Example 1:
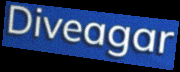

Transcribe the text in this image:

Diveagar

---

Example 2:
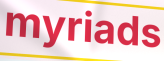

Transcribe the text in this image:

myriads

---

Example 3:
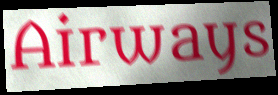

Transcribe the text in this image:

Airways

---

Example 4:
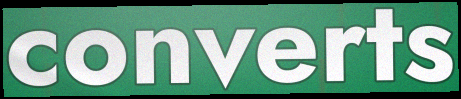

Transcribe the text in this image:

converts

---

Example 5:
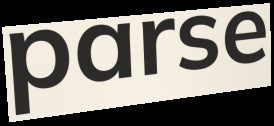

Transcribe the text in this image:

parse